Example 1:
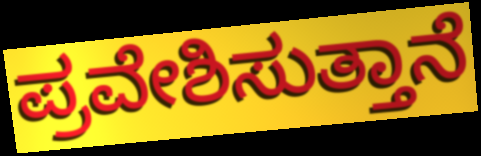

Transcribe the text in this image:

ಪ್ರವೇಶಿಸುತ್ತಾನೆ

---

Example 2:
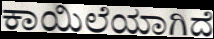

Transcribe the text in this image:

ಕಾಯಿಲೆಯಾಗಿದೆ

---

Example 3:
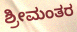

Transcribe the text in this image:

ಶ್ರೀಮಂತರ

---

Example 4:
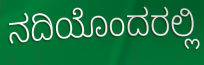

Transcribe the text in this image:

ನದಿಯೊಂದರಲ್ಲಿ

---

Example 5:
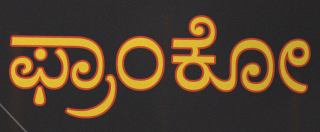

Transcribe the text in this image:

ಫ್ರಾಂಕೋ